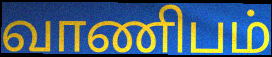
வாணிபம்